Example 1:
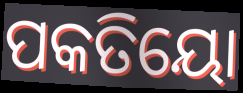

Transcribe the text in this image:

ପକତିୟୋ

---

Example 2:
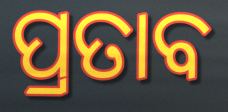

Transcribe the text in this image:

ପ୍ରତାବ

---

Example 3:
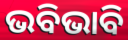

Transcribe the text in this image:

ଭବିଭାବି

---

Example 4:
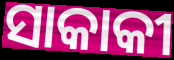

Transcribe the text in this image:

ସାକାକୀ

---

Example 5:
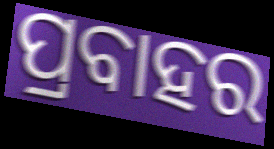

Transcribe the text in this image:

ପ୍ରବାହର